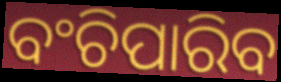
ବଂଚିପାରିବ